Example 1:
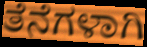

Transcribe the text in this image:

ತೆನೆಗಳಾಗಿ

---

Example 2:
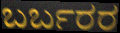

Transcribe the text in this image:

ಬರ್ಬರರ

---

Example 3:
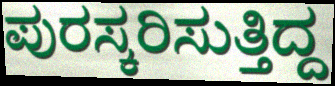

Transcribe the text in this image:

ಪುರಸ್ಕರಿಸುತ್ತಿದ್ದ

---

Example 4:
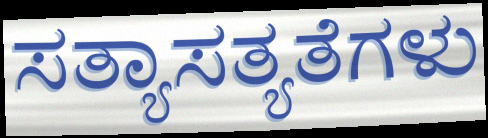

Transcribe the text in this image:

ಸತ್ಯಾಸತ್ಯತೆಗಳು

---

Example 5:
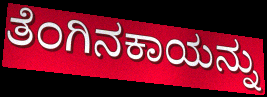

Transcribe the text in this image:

ತೆಂಗಿನಕಾಯನ್ನು